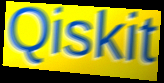
Qiskit